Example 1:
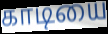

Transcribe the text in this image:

காடியை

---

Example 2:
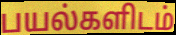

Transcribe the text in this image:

பயல்களிடம்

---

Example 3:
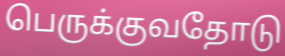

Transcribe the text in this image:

பெருக்குவதோடு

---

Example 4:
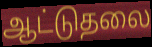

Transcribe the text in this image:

ஆட்டுதலை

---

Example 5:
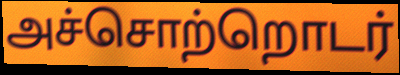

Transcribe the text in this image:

அச்சொற்றொடர்